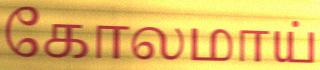
கோலமாய்